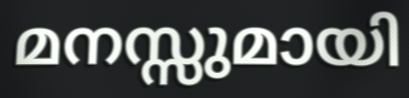
മനസ്സുമായി